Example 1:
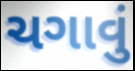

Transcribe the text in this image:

ચગાવું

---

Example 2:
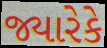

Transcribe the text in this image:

જ્યારેકે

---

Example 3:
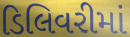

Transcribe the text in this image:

ડિલિવરીમાં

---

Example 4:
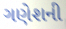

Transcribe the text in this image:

ગણેશની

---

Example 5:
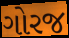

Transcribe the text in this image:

ગોરજ